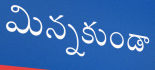
మిన్నకుండా